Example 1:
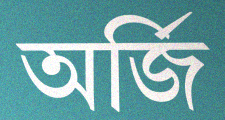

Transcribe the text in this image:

অর্জি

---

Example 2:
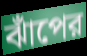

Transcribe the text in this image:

ঝাঁপের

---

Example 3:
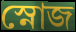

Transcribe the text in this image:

স্নোজ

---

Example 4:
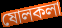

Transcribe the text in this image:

ষোলকলা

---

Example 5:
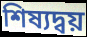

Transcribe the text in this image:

শিষ্যদ্বয়